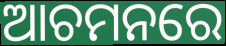
ଆଚମନରେ